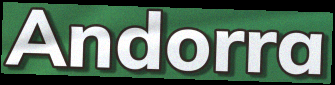
Andorra